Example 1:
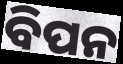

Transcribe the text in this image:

ବିପନ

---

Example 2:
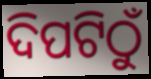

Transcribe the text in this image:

ଦିପଟିଠୁଁ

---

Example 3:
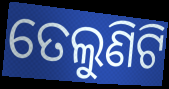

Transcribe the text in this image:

ତେଲୁଣିଟି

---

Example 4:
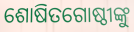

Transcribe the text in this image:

ଶୋଷିତଗୋଷ୍ଠୀଙ୍କୁ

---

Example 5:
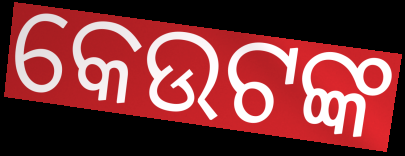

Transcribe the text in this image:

କେଉଟଙ୍କ